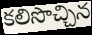
కలిసొచ్చిన